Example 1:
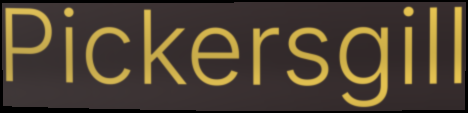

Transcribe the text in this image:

Pickersgill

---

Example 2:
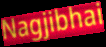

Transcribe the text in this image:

Nagjibhai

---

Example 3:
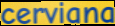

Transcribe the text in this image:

cerviana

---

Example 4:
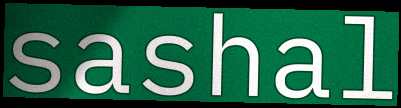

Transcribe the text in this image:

sashal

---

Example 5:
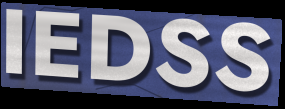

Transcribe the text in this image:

IEDSS